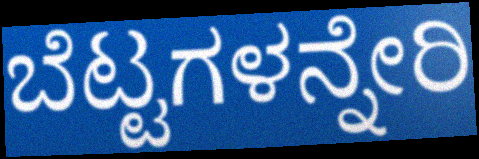
ಬೆಟ್ಟಗಳನ್ನೇರಿ